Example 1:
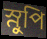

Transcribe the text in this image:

স্নুপি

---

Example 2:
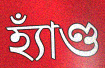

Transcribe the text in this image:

হ্যাঁণ্ড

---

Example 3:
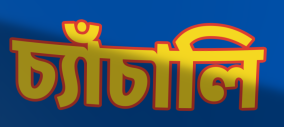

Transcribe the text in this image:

চ্যাঁচালি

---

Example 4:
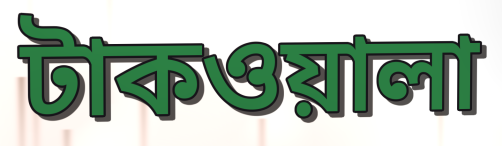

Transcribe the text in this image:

টাকওয়ালা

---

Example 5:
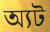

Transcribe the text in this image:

অ্যট